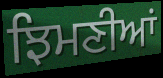
ਝਿਮਣੀਆਂ